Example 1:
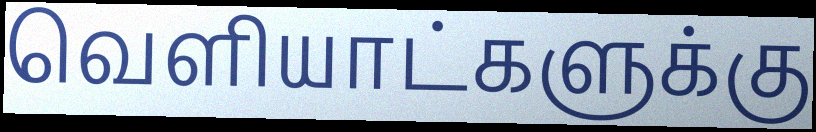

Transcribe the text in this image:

வெளியாட்களுக்கு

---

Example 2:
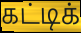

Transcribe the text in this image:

கட்டிக்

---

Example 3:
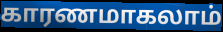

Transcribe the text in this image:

காரணமாகலாம்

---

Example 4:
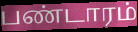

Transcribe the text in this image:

பண்டாரம்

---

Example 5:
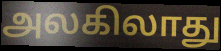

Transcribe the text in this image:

அலகிலாது